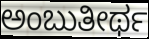
ಅಂಬುತೀರ್ಥ